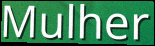
Mulher